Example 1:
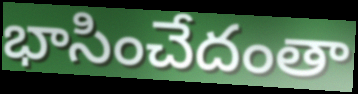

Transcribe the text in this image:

భాసించేదంతా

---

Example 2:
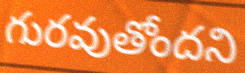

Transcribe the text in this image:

గురవుతోందని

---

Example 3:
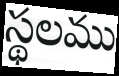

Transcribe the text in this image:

స్థలము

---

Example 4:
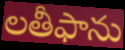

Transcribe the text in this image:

లతీఫాను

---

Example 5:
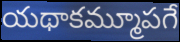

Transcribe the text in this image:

యథాకమ్మూపగే